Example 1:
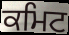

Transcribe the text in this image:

ਕਮਿਟ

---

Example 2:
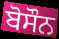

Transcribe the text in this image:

ਬੋਸੌਨ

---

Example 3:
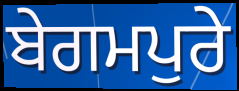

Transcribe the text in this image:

ਬੇਗਮਪੁਰੇ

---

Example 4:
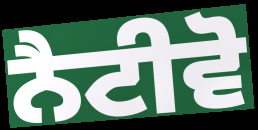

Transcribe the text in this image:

ਨੈਟੀਵੋ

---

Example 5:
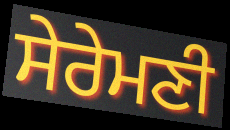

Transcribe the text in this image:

ਸੇਰੇਮਣੀ